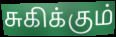
சுகிக்கும்